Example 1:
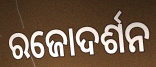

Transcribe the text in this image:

ରଜୋଦର୍ଶନ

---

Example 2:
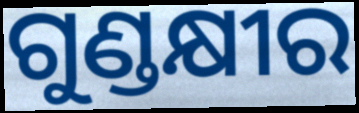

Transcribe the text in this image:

ଗୁଣ୍ଡକ୍ଷୀର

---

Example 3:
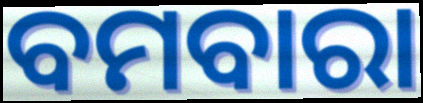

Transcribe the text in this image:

ବମବାରା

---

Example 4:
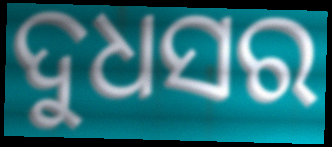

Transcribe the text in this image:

ଦୁଧସର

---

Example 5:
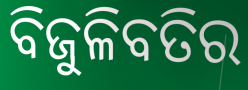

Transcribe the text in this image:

ବିଜୁଳିବତିର